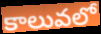
కాలువలో